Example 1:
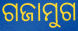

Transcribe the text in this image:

ଗଜାମୁଗ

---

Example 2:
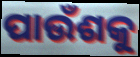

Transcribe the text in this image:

ପାଉଁଶକୁ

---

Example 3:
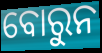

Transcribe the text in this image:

ବୋରୁନ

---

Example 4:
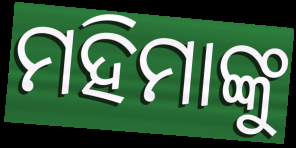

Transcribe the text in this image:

ମହିମାଙ୍କୁ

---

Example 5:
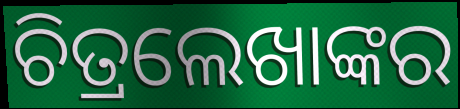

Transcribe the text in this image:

ଚିତ୍ରଲେଖାଙ୍କର